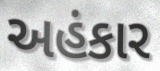
અહંકાર